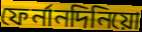
ফের্নানদিনিয়ো